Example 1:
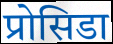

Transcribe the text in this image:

प्रोसिडा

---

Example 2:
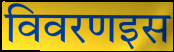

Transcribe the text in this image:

विवरणइस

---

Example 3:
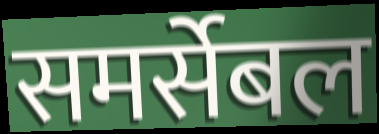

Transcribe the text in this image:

समर्सेबल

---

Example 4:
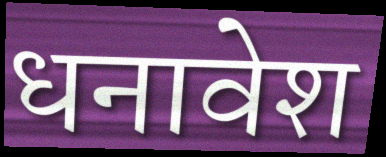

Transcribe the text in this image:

धनावेश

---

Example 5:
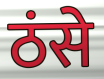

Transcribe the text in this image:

ठंसे